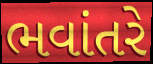
ભવાંતરે